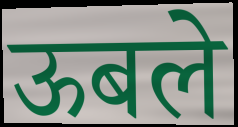
ऊबले